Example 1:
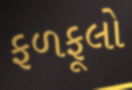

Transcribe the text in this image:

ફળફૂલો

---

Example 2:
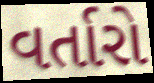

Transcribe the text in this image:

વર્તારો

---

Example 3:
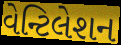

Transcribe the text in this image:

વેન્ટિલેશન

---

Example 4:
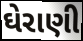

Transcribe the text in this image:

ઘેરાણી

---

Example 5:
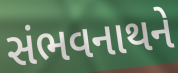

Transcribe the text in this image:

સંભવનાથને